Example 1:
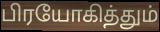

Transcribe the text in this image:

பிரயோகித்தும்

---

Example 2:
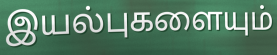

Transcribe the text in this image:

இயல்புகளையும்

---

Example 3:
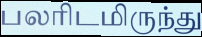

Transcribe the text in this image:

பலரிடமிருந்து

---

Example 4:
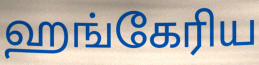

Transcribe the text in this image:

ஹங்கேரிய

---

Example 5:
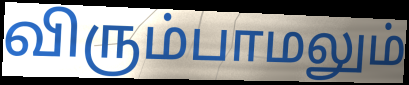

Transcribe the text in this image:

விரும்பாமலும்